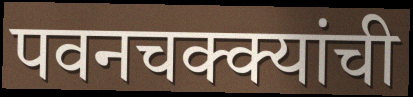
पवनचक्क्यांची